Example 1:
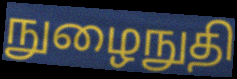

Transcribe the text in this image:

நுழைநுதி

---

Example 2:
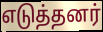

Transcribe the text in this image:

எடுத்தனர்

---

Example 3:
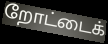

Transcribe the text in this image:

றோட்டைக்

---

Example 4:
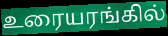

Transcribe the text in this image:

உரையரங்கில்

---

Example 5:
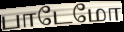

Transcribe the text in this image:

பாடேமோ